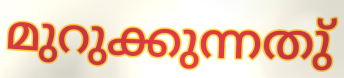
മുറുക്കുന്നതു്